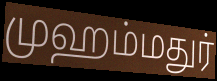
முஹம்மதுர்